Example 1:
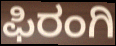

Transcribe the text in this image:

ಫಿರಂಗಿ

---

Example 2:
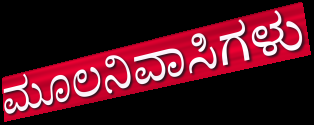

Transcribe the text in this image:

ಮೂಲನಿವಾಸಿಗಳು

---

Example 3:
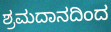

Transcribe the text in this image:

ಶ್ರಮದಾನದಿಂದ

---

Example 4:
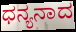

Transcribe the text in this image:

ಧನ್ಯನಾದ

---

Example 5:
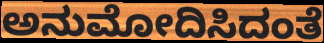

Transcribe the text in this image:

ಅನುಮೋದಿಸಿದಂತೆ